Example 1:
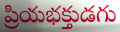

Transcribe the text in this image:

ప్రియభక్తుడగు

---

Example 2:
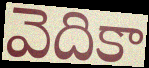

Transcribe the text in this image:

వెదికా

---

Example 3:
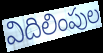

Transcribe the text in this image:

విదిలింపుల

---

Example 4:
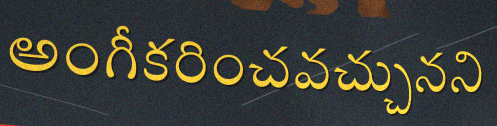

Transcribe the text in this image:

అంగీకరించవచ్చునని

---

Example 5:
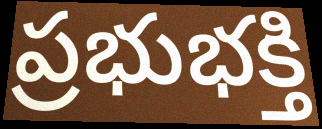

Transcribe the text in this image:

ప్రభుభక్తి